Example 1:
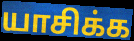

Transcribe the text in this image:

யாசிக்க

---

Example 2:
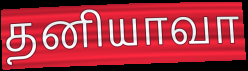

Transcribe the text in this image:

தனியாவா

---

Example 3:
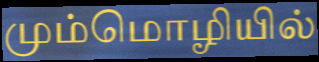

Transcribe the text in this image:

மும்மொழியில்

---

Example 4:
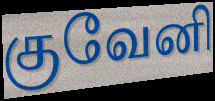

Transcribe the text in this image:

குவேனி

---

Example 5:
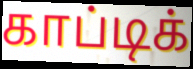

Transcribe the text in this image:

காப்டிக்